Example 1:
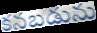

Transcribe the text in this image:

కనబడును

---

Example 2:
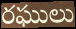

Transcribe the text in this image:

రఘులు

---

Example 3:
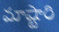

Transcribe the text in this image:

మాష్టారి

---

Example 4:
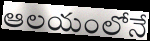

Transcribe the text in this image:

ఆలయంలోనే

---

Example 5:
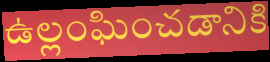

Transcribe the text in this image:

ఉల్లంఘించడానికి